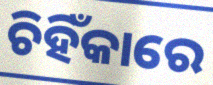
ଚିହିଁକାରେ